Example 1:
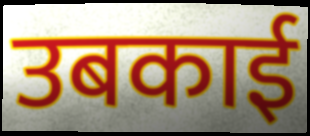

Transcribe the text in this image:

उबकाई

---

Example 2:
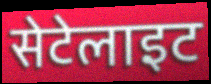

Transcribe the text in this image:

सेटेलाइट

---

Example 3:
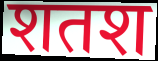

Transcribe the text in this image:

शतश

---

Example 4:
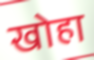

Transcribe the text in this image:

खोहा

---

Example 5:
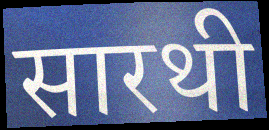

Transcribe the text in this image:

सारथी